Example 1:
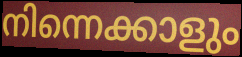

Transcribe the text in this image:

നിന്നെക്കാളും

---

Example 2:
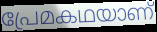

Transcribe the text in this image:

പ്രേമകഥയാണ്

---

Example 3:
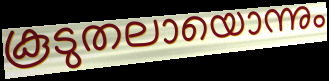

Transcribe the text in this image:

കൂടുതലായൊന്നും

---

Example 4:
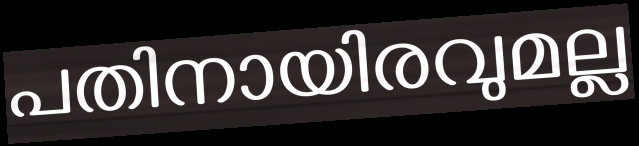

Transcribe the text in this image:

പതിനായിരവുമല്ല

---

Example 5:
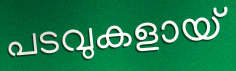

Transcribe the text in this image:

പടവുകളായ്